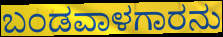
ಬಂಡವಾಳಗಾರನು